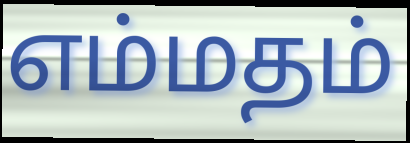
எம்மதம்